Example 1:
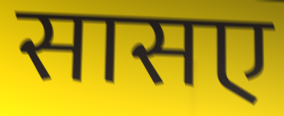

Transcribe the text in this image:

सासए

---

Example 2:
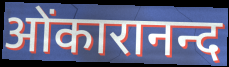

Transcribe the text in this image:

ओंकारानन्द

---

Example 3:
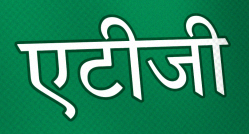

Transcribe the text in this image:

एटीजी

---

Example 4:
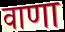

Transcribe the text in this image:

वाणा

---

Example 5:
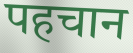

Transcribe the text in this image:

पहचान